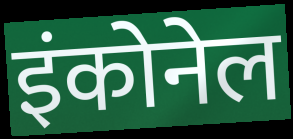
इंकोनेल